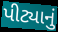
પીટ્યાનું